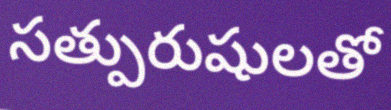
సత్పురుషులతో